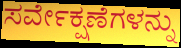
ಸರ್ವೇಕ್ಷಣೆಗಳನ್ನು